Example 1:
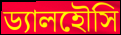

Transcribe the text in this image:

ড্যালহৌসি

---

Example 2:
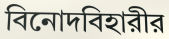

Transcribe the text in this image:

বিনোদবিহারীর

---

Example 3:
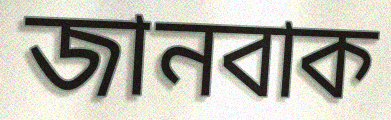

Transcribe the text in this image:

জানবাক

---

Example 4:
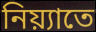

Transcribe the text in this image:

নিয়্যাতে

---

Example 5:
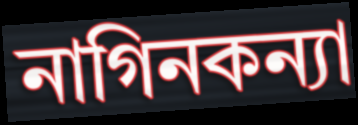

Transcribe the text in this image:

নাগিনকন্যা